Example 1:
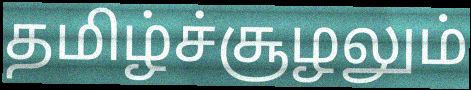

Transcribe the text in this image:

தமிழ்ச்சூழலும்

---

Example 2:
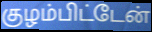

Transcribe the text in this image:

குழம்பிட்டேன்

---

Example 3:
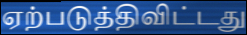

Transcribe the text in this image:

ஏற்படுத்திவிட்டது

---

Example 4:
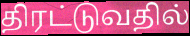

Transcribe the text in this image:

திரட்டுவதில்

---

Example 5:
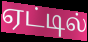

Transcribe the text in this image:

ஏட்டில்